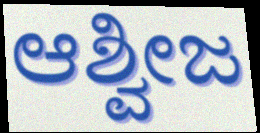
ಆಶ್ವೀಜ